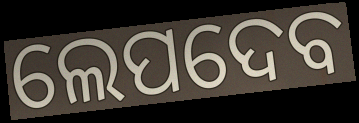
ଲେପଦେବ